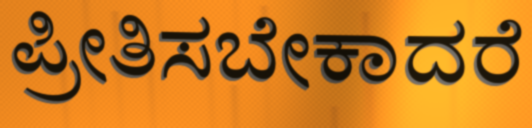
ಪ್ರೀತಿಸಬೇಕಾದರೆ